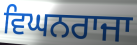
ਵਿਘਨਰਾਜਾ